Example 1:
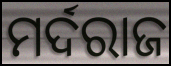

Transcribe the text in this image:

ମର୍ଦରାଜ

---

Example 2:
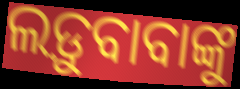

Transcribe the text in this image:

ଲଡ଼ୁବାବାଙ୍କୁ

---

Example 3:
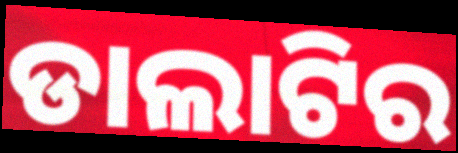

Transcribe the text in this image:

ଡାଲାଟିର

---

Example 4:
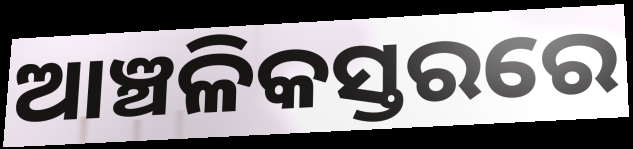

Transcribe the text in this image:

ଆଞ୍ଚଳିକସ୍ତରରେ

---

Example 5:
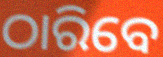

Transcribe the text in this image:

ଠାରିବେ